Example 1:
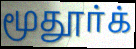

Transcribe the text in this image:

மூதூர்க்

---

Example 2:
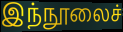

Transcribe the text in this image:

இந்நூலைச்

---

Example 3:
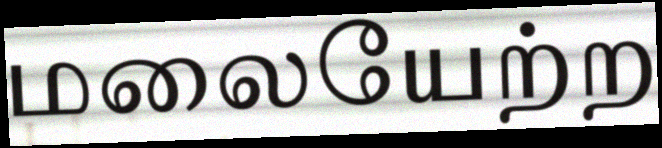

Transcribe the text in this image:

மலையேற்ற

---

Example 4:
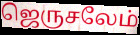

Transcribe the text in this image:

ஜெருசலேம்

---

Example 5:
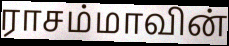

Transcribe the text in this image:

ராசம்மாவின்